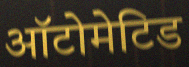
ऑटोमेटिड